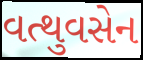
વત્થુવસેન